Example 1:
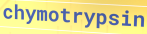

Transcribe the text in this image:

chymotrypsin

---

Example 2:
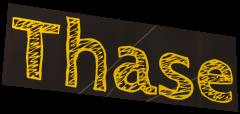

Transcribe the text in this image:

Thase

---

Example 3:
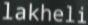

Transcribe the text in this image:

lakheli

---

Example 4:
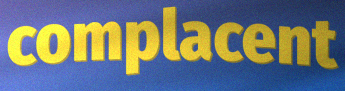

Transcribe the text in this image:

complacent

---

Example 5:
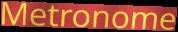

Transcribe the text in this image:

Metronome